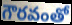
గౌరవంతో